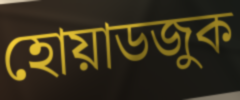
হোয়াডজুক